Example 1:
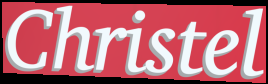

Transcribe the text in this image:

Christel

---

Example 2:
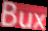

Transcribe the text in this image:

Bux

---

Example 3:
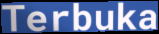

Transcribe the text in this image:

Terbuka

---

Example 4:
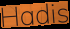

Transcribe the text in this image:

Hadis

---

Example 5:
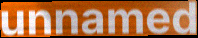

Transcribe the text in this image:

unnamed